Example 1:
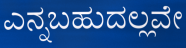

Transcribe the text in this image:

ಎನ್ನಬಹುದಲ್ಲವೇ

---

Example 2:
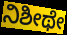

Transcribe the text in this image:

ನಿಶೀಥೇ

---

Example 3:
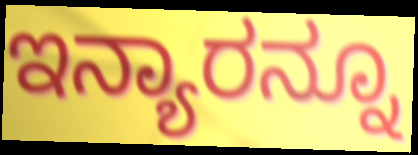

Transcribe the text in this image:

ಇನ್ಯಾರನ್ನೂ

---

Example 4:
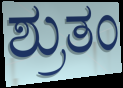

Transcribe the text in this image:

ಶ್ರುತಂ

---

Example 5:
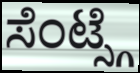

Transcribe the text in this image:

ಸೆಂಟ್ಸ್ಗೆ